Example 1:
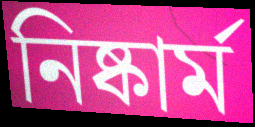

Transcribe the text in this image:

নিষ্কার্ম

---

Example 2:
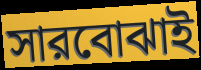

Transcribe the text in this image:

সারবোঝাই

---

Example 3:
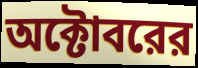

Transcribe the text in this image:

অক্টোবরের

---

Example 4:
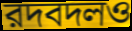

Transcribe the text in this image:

রদবদলও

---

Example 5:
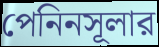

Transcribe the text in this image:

পেনিনসূলার